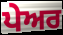
ਪੇਅਰ